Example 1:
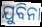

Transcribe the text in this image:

ଯୁବିନା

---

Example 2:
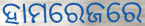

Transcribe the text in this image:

ହାମରେଜରେ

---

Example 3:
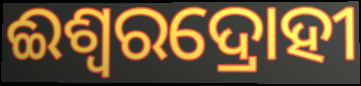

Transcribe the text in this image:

ଈଶ୍ଵରଦ୍ରୋହୀ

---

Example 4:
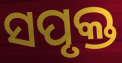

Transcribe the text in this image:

ସପୃକ୍ତ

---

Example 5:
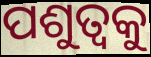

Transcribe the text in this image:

ପଶୁତ୍ୱକୁ